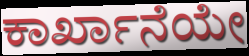
ಕಾರ್ಖಾನೆಯೇ